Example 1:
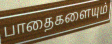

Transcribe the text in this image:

பாதைகளையும்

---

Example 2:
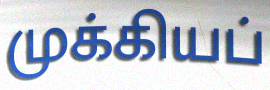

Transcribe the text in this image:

முக்கியப்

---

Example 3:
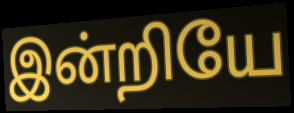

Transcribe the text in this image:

இன்றியே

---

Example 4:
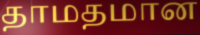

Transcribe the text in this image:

தாமதமான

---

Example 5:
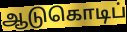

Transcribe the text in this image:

ஆடுகொடிப்